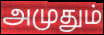
அமுதும்